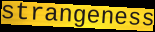
strangeness